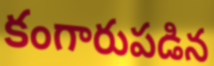
కంగారుపడిన